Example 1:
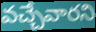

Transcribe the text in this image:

వచ్చేవారని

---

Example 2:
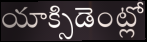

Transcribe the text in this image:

యాక్సిడెంట్లో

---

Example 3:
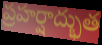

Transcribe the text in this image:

ప్రహర్షాద్భుత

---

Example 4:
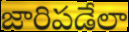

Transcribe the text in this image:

జారిపడేలా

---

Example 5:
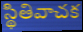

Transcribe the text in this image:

స్థితివాచక